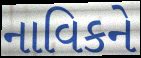
નાવિકને